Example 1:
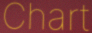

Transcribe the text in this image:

Chart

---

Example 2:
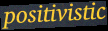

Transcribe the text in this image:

positivistic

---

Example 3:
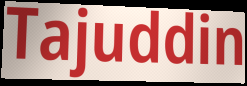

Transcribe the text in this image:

Tajuddin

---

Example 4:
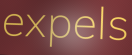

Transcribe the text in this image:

expels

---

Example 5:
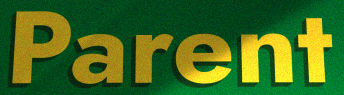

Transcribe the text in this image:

Parent